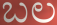
ಬಲ